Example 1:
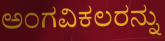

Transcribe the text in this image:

ಅಂಗವಿಕಲರನ್ನು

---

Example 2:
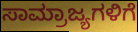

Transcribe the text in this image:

ಸಾಮ್ರಾಜ್ಯಗಳಿಗೆ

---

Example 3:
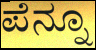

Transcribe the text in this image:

ಪೆನ್ನೂ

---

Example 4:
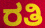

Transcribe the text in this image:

ರತಿ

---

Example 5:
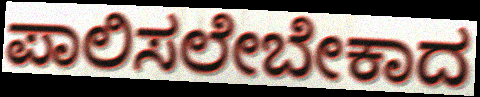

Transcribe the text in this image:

ಪಾಲಿಸಲೇಬೇಕಾದ